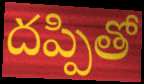
దప్పితో